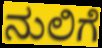
ನುಲಿಗೆ